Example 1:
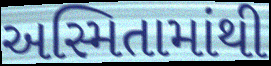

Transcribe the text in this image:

અસ્મિતામાંથી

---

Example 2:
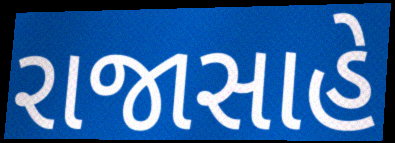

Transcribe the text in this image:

રાજાસાહે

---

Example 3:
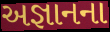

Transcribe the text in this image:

અજ્ઞાનના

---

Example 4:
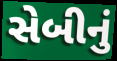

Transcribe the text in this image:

સેબીનું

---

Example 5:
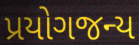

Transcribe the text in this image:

પ્રયોગજન્ય